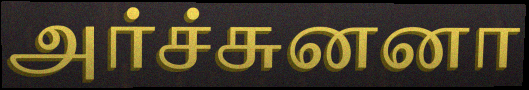
அர்ச்சுனனா